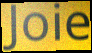
Joie